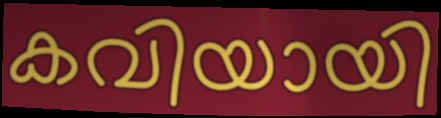
കവിയായി